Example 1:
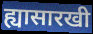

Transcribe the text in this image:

ह्यासारखी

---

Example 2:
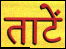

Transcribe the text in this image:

ताटें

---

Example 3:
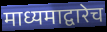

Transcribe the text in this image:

माध्यमाद्वारेच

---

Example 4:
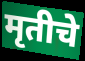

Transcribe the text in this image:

मृतीचे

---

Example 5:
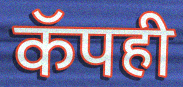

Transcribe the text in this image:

कॅपही